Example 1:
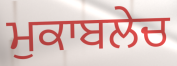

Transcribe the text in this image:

ਮੁਕਾਬਲੇਚ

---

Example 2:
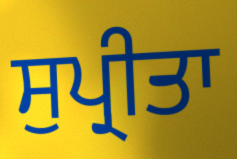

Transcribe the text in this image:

ਸੁਪ੍ਰੀਤਾ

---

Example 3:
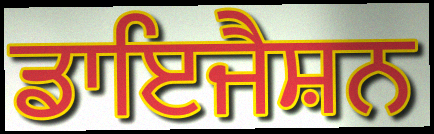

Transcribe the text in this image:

ਡਾਇਜੈਸ਼ਨ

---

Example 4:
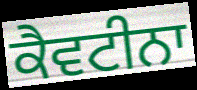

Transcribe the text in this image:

ਕੈਵਟੀਨਾ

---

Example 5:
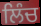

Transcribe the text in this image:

ਲਿੰਚ